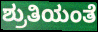
ಶ್ರುತಿಯಂತೆ